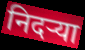
निदऱ्या